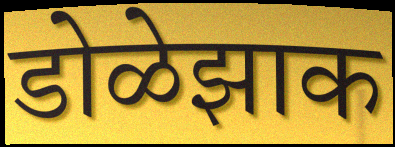
डोळेझाक